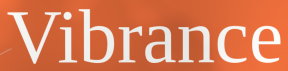
Vibrance